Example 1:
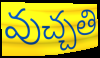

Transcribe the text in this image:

వుచ్చతి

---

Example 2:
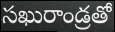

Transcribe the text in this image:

సఖురాండ్రతో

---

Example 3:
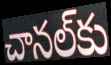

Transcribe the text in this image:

చానల్‌కు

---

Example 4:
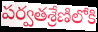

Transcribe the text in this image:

పర్వతశ్రేణిలోకి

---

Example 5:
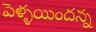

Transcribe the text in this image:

పెళ్ళయిందన్న